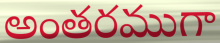
అంతరముగా